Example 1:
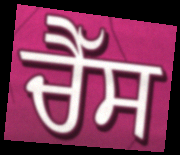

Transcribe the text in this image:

ਚੈੱਸ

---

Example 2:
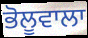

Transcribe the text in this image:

ਭੋਲੂਵਾਲਾ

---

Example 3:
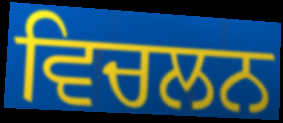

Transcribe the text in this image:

ਵਿਚਲਨ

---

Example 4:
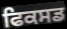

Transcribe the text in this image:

ਫਿਕਸਡ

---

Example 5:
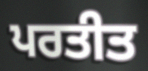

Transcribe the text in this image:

ਪਰਤੀਤ